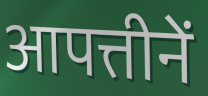
आपत्तीनें